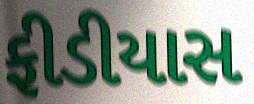
ફીડીયાસ